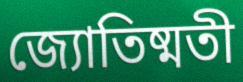
জ্যোতিষ্মতী